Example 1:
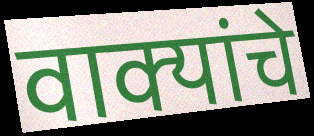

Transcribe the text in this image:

वाक्यांचे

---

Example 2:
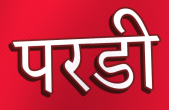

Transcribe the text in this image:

परडी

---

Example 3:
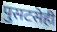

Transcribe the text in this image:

पुसटसेही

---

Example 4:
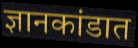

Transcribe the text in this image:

ज्ञानकांडात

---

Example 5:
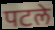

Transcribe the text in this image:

पटले